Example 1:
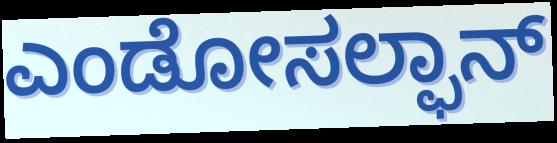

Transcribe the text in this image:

ಎಂಡೋಸಲ್ಫಾನ್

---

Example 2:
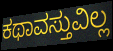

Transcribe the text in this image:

ಕಥಾವಸ್ತುವಿಲ್ಲ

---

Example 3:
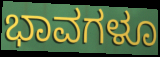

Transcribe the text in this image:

ಭಾವಗಳೂ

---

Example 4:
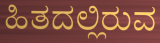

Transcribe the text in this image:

ಹಿತದಲ್ಲಿರುವ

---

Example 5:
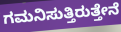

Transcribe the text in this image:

ಗಮನಿಸುತ್ತಿರುತ್ತೇನೆ